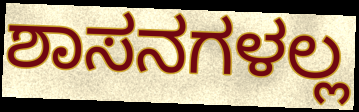
ಶಾಸನಗಳಲ್ಲ